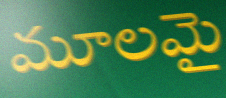
మూలమై